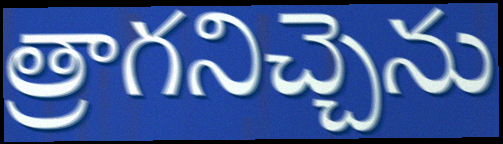
త్రాగనిచ్చెను